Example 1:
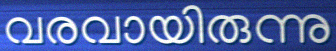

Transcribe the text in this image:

വരവായിരുന്നു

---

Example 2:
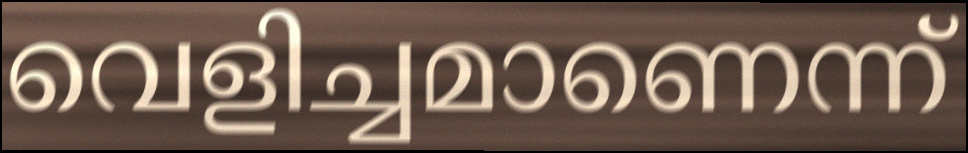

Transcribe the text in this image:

വെളിച്ചമാണെന്ന്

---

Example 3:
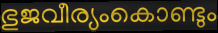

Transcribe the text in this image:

ഭുജവീര്യംകൊണ്ടും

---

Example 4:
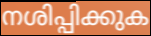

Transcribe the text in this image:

നശിപ്പിക്കുക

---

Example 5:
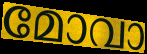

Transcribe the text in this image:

മോവാ